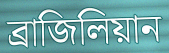
ব্রাজিলিয়ান